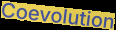
Coevolution